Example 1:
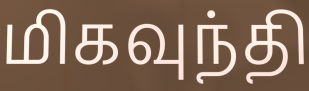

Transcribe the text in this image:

மிகவுந்தி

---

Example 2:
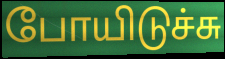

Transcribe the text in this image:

போயிடுச்சு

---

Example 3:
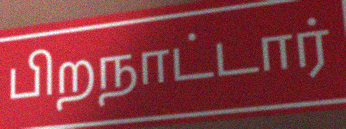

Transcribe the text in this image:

பிறநாட்டார்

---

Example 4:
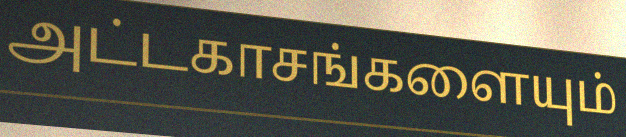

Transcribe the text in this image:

அட்டகாசங்களையும்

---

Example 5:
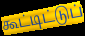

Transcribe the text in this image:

கூட்டிட்டுப்